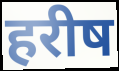
हरीष